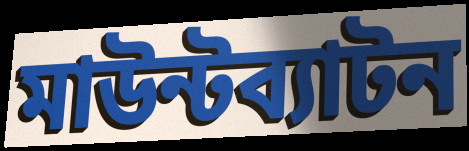
মাউন্টব্যাটন